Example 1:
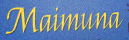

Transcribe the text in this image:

Maimuna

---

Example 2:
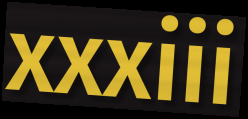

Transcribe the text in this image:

xxxiii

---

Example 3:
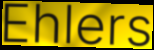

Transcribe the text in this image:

Ehlers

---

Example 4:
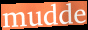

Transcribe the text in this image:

mudde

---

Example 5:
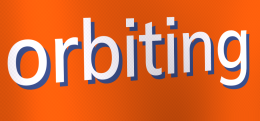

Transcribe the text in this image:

orbiting